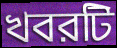
খবরটি